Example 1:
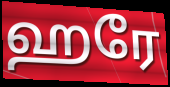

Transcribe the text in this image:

ஹரே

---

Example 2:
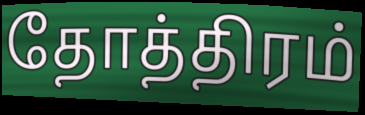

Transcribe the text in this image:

தோத்திரம்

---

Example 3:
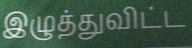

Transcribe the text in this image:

இழுத்துவிட்ட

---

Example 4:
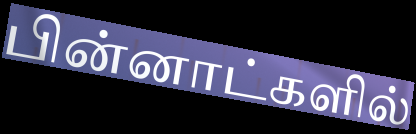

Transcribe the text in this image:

பின்னாட்களில்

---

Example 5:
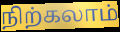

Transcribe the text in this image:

நிற்கலாம்